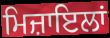
ਮਿਜ਼ਾਇਲਾਂ